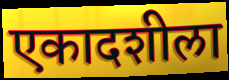
एकादशीला